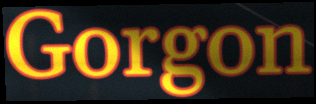
Gorgon